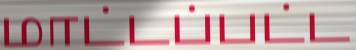
மாட்டப்பட்ட